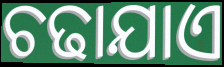
ଚଢାଯାଏ